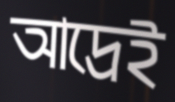
আদ্রেই